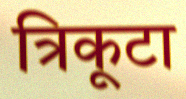
त्रिकूटा